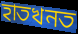
হাতখনত